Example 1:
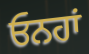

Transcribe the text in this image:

ਓਨਹਾਂ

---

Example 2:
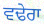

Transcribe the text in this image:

ਵਢੇਰਾ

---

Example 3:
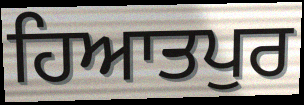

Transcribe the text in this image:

ਹਿਆਤਪੁਰ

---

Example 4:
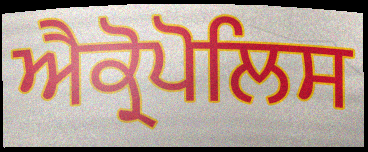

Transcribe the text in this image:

ਐਕ੍ਰੋਪੋਲਿਸ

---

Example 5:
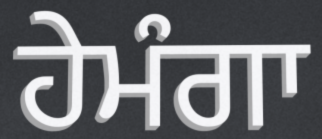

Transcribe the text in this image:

ਹੇਮੰਗਾ